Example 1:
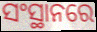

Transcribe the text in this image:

ସଂସ୍ଥାନରେ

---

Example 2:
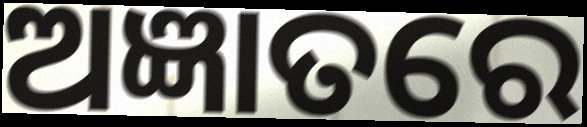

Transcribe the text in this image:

ଅଜ୍ଞାତରେ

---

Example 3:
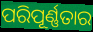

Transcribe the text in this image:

ପରିପୂର୍ଣ୍ଣତାର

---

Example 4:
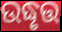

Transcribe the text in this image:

ଉଦ୍ଧୃତ୍ତ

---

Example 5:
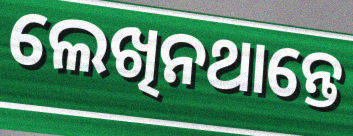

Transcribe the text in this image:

ଲେଖିନଥାନ୍ତେ